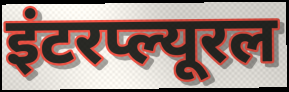
इंटरप्ल्यूरल